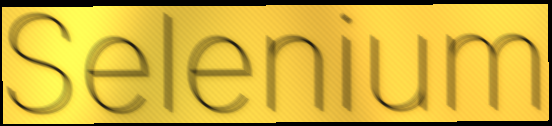
Selenium